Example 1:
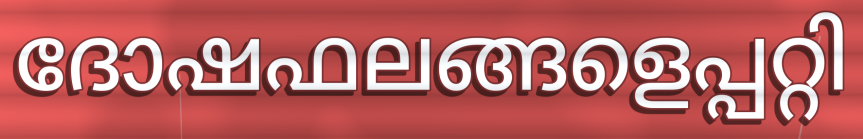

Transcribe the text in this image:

ദോഷഫലങ്ങളെപ്പറ്റി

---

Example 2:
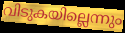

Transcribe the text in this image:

വിടുകയില്ലെന്നും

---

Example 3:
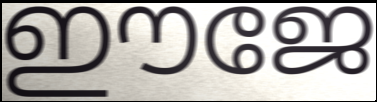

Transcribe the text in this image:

ഈജേ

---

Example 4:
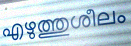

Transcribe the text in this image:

എഴുത്തുശീലം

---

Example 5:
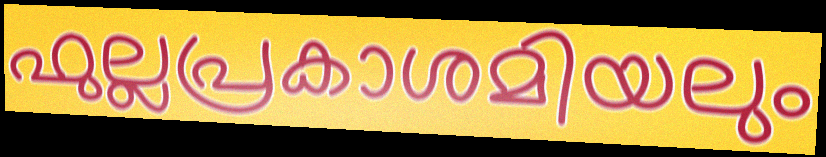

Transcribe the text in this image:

ഫുല്ലപ്രകാശമിയലും